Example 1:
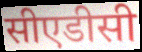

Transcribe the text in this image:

सीएडीसी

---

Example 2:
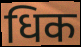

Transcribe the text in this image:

धिक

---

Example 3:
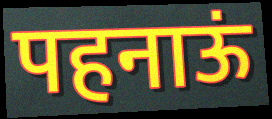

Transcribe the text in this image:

पहनाऊं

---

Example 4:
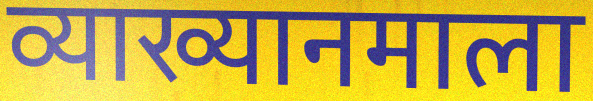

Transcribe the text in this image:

व्याख्यानमाला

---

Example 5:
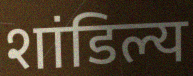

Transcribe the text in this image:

शांडिल्य